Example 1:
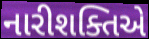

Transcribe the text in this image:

નારીશક્તિએ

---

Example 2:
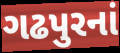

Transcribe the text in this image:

ગઢપુરનાં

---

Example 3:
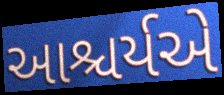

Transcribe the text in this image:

આશ્ચર્યએ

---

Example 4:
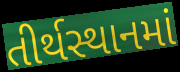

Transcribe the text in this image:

તીર્થસ્થાનમાં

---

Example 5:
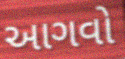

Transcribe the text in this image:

આગવો